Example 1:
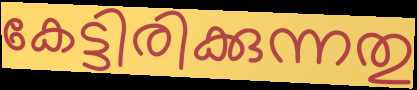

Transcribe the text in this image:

കേട്ടിരിക്കുന്നതു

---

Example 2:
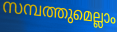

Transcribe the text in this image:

സമ്പത്തുമെല്ലാം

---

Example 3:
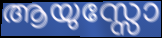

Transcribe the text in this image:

ആയുസ്സോ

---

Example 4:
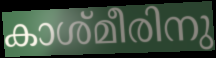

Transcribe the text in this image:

കാശ്മീരിനു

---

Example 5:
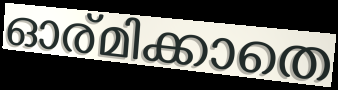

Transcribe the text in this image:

ഓര്മിക്കാതെ